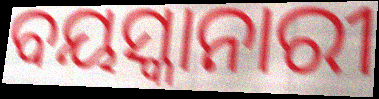
ବୟସ୍କାନାରୀ